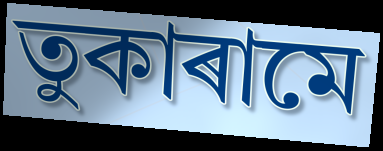
তুকাৰামে